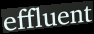
effluent